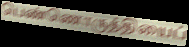
பெண்ணொருத்தியைப்